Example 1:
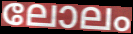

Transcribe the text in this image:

ലോലം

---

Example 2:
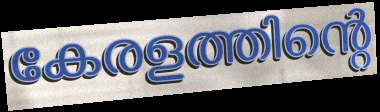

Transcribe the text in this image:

കേരളത്തിന്റെ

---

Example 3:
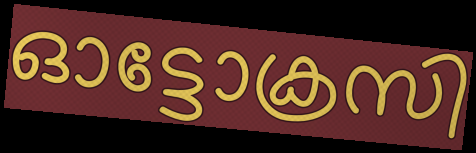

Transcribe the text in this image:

ഓട്ടോക്രസി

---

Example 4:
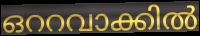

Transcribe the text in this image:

ഒററവാക്കിൽ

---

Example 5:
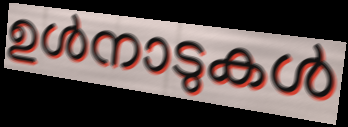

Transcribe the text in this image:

ഉൾനാടുകൾ